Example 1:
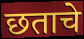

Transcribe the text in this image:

छताचे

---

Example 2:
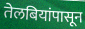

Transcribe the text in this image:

तेलबियांपासून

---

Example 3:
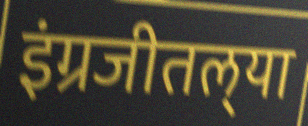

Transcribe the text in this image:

इंग्रजीतल्या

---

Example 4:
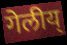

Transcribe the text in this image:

गेलीय्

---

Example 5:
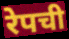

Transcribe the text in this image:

रेपची